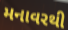
મનાવરથી